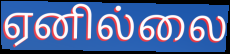
ஏனில்லை